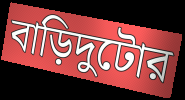
বাড়িদুটোর